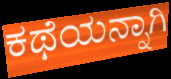
ಕಥೆಯನ್ನಾಗಿ